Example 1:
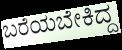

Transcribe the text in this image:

ಬರೆಯಬೇಕಿದ್ದ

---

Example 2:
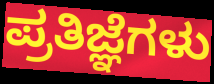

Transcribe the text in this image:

ಪ್ರತಿಜ್ಞೆಗಳು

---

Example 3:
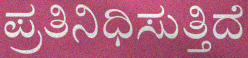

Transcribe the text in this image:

ಪ್ರತಿನಿಧಿಸುತ್ತಿದೆ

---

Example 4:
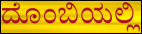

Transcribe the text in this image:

ದೊಂಬಿಯಲ್ಲಿ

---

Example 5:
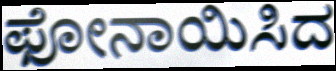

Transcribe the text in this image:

ಫೋನಾಯಿಸಿದ